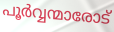
പൂർവ്വന്മാരോട്